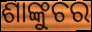
ଶାଙ୍କୁଚର